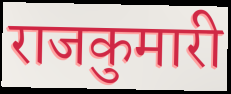
राजकुमारी